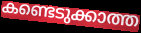
കണ്ടെടുക്കാത്ത